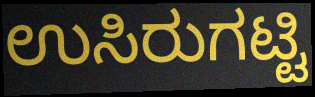
ಉಸಿರುಗಟ್ಟಿ